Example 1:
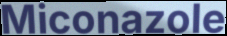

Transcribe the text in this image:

Miconazole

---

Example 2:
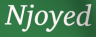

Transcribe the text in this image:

Njoyed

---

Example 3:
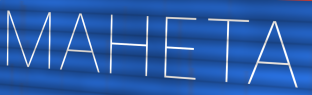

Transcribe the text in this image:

MAHETA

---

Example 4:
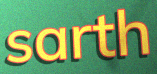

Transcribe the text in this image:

sarth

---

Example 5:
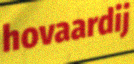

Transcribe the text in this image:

hovaardij